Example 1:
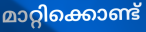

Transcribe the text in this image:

മാറ്റിക്കൊണ്ട്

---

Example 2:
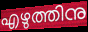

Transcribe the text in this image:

എഴുത്തിനു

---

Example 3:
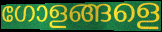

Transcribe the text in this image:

ഗോളങ്ങളെ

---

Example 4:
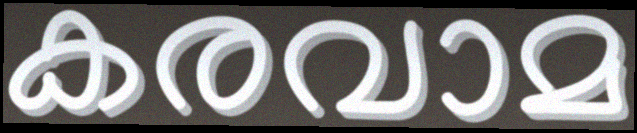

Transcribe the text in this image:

കരവാമ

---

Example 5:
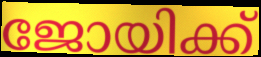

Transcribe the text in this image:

ജോയിക്ക്